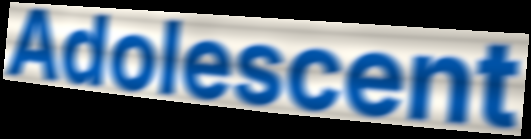
Adolescent